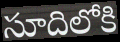
సూదిలోకి